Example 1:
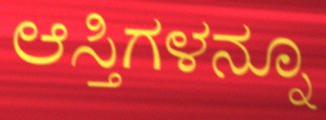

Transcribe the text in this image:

ಆಸ್ತಿಗಳನ್ನೂ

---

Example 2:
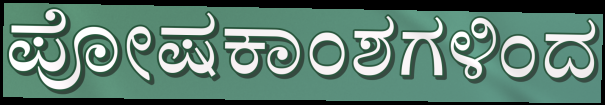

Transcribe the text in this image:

ಪೋಷಕಾಂಶಗಳಿಂದ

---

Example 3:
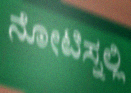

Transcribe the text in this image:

ನೋಟಿಸ್ನಲ್ಲಿ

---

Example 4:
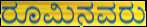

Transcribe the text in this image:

ರೂಮಿನವರು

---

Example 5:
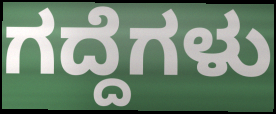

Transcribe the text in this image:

ಗದ್ದೆಗಳು